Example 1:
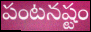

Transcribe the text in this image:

పంటనష్టం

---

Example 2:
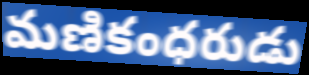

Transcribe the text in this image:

మణికంధరుడు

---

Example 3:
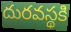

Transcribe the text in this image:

దురవస్థకి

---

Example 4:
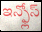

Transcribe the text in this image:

ఇన్ఫ్లోస్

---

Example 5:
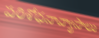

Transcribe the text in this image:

పరిశోధనావ్యాసాలు